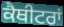
ਕੈਥੀਟਰਾਂ